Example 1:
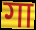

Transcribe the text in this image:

गा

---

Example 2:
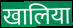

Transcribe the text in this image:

खालिया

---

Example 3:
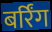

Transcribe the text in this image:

बर्रिंग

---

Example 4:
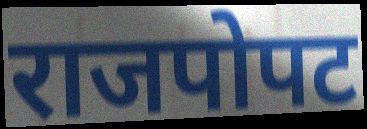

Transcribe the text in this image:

राजपोपट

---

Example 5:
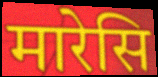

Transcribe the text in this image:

मारेसि